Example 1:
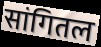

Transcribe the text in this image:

सांगितल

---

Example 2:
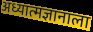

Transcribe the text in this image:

अध्यात्मज्ञानाला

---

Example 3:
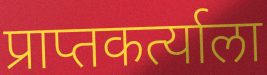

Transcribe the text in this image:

प्राप्तकर्त्याला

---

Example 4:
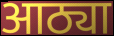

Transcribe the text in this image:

आठ्या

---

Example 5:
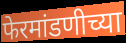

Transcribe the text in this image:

फेरमांडणीच्या